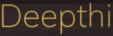
Deepthi